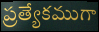
ప్రత్యేకముగా